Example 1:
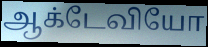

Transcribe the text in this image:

ஆக்டேவியோ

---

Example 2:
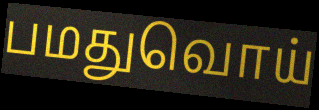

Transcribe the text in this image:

பமதுவொய்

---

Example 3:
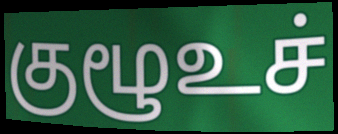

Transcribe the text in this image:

குழூஉச்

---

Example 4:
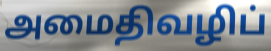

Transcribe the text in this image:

அமைதிவழிப்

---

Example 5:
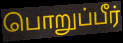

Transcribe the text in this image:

பொறுப்பீர்